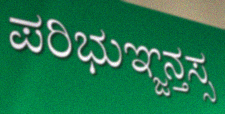
ಪರಿಭುಞ್ಜನ್ತಸ್ಸ